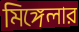
মিঙ্গেলার